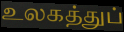
உலகத்துப்